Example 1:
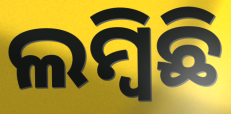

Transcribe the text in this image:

ଲମ୍ବିଛି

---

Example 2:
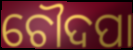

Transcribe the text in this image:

ଚୌଦପା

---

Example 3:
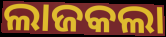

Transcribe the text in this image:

ଲାଜକଲା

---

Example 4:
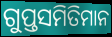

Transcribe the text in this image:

ଗୁପ୍ତସମିତିମାନ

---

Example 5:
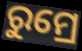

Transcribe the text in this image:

ରୁମ୍ରେ